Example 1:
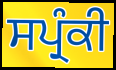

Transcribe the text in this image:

ਸਪ੍ਰੰਕੀ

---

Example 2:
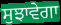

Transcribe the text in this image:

ਸੁਝਾਵੇਗਾ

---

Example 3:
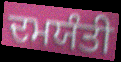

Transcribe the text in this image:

ਦਮਯੰਤੀ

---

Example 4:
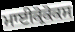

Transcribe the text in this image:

ਮਾਈਕ੍ਰੋਕੋਕਸ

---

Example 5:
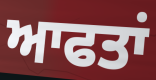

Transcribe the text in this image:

ਆਫਤਾਂ